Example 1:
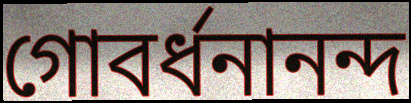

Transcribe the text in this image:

গোবর্ধনানন্দ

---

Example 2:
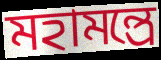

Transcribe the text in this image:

মহামন্ত্রে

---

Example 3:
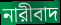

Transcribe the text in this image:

নারীবাদ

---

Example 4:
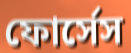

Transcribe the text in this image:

ফোর্সেস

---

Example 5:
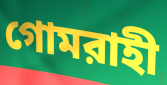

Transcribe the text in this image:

গোমরাহী